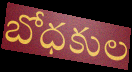
బోధకుల